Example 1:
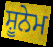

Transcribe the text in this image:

ਸ਼ੂਨੇਮ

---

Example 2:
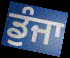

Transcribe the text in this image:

ਡੁੰਜਾ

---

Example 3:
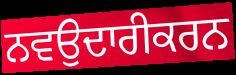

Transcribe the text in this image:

ਨਵਉਦਾਰੀਕਰਨ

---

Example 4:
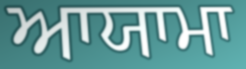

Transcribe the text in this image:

ਆਯਾਮਾ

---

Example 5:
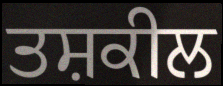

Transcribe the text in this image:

ਤਸ਼ਕੀਲ